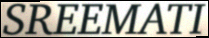
SREEMATI